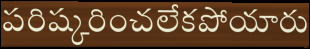
పరిష్కరించలేకపోయారు